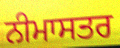
ਨੀਮਾਸਤਰ